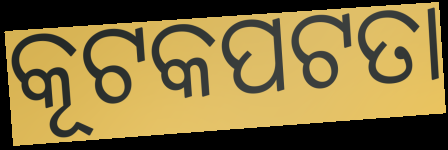
କୂଟକପଟତା